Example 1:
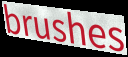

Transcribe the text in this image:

brushes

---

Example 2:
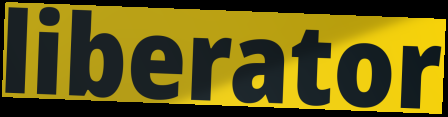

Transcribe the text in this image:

liberator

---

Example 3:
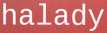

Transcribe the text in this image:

halady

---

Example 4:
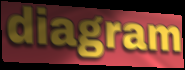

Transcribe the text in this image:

diagram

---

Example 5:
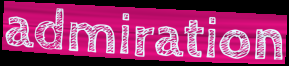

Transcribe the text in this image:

admiration